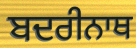
ਬਦਰੀਨਾਥ